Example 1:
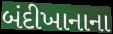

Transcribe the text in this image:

બંદીખાનાના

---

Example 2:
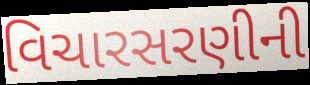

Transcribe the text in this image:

વિચારસરણીની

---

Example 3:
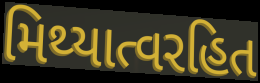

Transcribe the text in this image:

મિથ્યાત્વરહિત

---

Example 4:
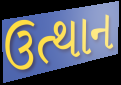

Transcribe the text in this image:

ઉત્થાન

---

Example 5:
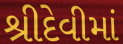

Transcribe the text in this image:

શ્રીદેવીમાં